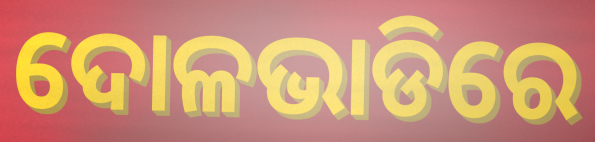
ଦୋଳଭାଡିରେ